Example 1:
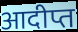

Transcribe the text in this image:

आदीप्त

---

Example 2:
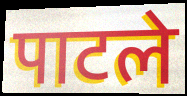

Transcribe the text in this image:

पाटले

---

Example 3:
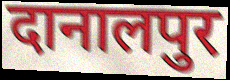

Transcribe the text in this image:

दानालपुर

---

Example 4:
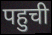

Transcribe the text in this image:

पहुची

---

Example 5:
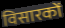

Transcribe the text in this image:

विसारकों